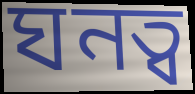
ঘনত্ব